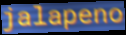
jalapeno